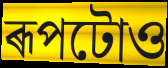
ৰূপটোও